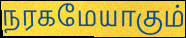
நரகமேயாகும்